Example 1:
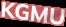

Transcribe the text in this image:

KGMU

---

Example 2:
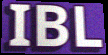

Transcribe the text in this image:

IBL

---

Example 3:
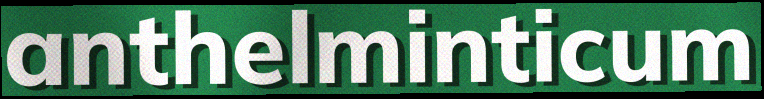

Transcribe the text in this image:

anthelminticum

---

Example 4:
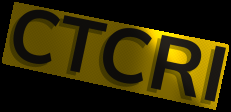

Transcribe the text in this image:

CTCRI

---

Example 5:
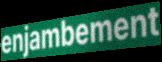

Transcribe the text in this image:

enjambement